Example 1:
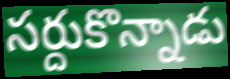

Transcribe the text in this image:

సర్దుకొన్నాడు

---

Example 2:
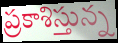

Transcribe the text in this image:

ప్రకాశిస్తున్న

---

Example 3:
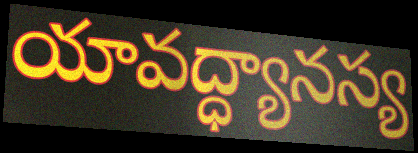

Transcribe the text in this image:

యావద్ధ్యానస్య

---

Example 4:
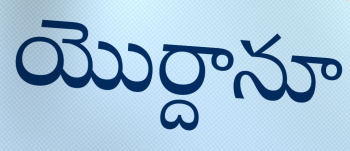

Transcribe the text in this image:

యొర్దానూ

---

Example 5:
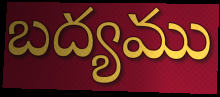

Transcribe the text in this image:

బద్యము